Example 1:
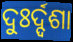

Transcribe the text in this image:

ଦୁଃର୍ଦ୍ଦଶା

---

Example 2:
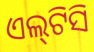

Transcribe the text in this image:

ଏଲ୍‌ଟିସି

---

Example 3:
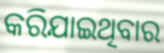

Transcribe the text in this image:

କରିଯାଇଥିବାର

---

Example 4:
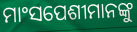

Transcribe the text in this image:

ମାଂସପେଶୀମାନଙ୍କୁ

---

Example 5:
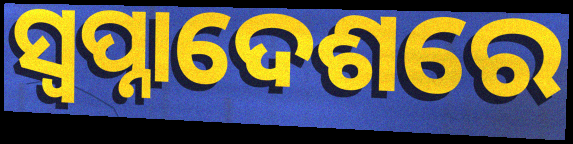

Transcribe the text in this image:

ସ୍ଵପ୍ନାଦେଶରେ